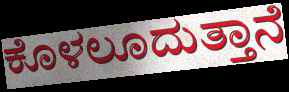
ಕೊಳಲೂದುತ್ತಾನೆ